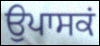
ਉਪਾਸਕਂ